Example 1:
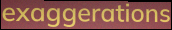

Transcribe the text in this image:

exaggerations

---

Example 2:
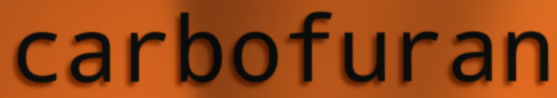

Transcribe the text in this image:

carbofuran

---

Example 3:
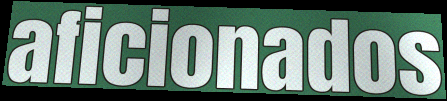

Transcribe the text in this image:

aficionados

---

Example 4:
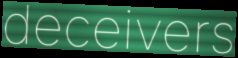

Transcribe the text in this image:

deceivers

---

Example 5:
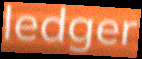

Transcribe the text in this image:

ledger